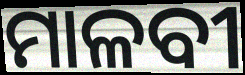
ମାଳବୀ